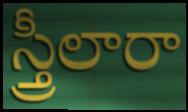
స్త్రీలారా